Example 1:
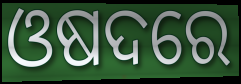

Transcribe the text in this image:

ଓଷଦରେ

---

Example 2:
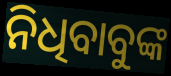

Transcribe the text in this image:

ନିଧିବାବୁଙ୍କ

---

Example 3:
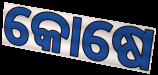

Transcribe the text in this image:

କୋଷେ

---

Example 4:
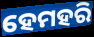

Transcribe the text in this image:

ହେମହରି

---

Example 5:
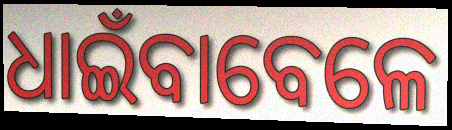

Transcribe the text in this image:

ଧାଇଁବାବେଳେ